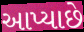
આપ્યાછે